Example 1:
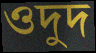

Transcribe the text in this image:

ওদুদ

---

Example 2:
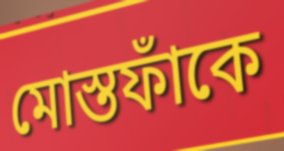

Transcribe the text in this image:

মোস্তফাঁকে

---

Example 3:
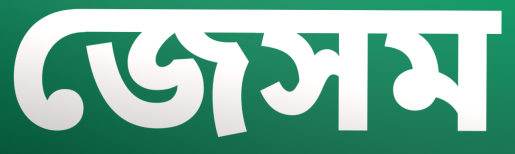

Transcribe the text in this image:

জেসম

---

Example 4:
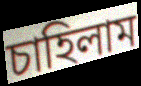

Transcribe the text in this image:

চাহিলাম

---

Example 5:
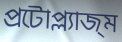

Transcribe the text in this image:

প্রটোপ্ল্যাজ্ম